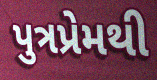
પુત્રપ્રેમથી